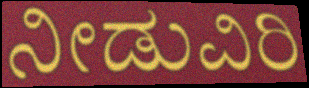
ನೀಡುವಿರಿ